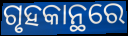
ଗୃହକାନ୍ଥରେ